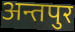
अन्तपुर